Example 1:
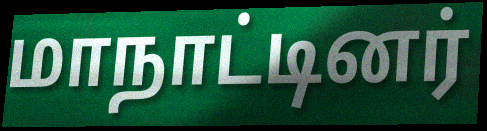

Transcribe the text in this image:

மாநாட்டினர்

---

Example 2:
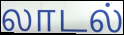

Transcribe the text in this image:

லாடல்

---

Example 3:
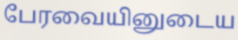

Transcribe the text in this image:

பேரவையினுடைய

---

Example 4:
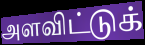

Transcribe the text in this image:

அளவிட்டுக்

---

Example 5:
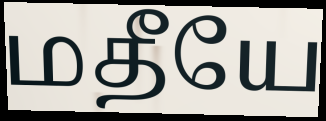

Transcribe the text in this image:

மதீயே